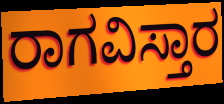
ರಾಗವಿಸ್ತಾರ